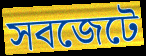
সবজেটে